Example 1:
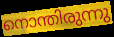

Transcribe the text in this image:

നൊന്തിരുന്നു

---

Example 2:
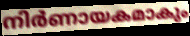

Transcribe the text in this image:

നിർണായകമാകും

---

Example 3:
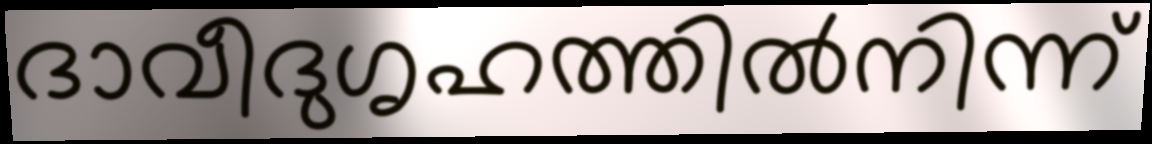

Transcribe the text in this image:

ദാവീദുഗൃഹത്തിൽനിന്ന്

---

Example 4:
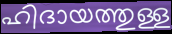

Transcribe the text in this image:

ഹിദായത്തുള്ള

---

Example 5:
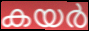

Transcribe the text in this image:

കയർ